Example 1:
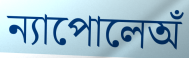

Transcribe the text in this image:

ন্যাপোলেঅঁ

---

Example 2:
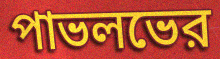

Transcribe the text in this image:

পাভলভের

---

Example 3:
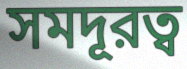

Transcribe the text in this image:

সমদূরত্ব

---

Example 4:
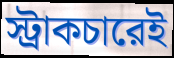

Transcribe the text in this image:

স্ট্রাকচারেই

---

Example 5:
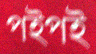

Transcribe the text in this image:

পইপই